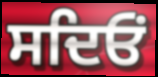
ਸਦਿਓਂ